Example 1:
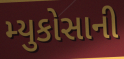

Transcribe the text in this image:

મ્યુકોસાની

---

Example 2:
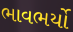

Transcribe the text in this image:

ભાવભર્યો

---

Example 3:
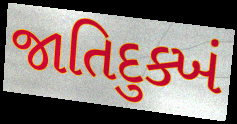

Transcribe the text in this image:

જાતિદુક્ખં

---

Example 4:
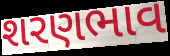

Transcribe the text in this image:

શરણભાવ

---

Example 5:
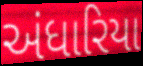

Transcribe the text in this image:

અંધારિયા